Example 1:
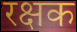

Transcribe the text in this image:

रक्षक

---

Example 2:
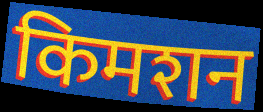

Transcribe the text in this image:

किमशन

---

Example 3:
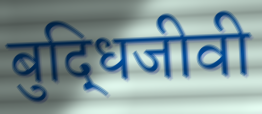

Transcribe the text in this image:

बुद्धिजीवी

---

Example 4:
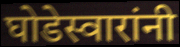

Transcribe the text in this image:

घोडेस्वारांनी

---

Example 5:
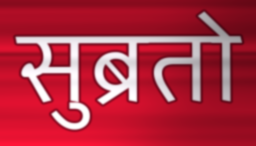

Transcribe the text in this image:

सुब्रतो